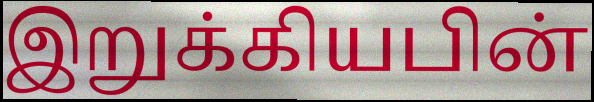
இறுக்கியபின்